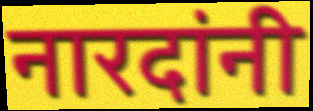
नारदांनी